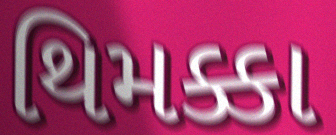
થિમક્કા